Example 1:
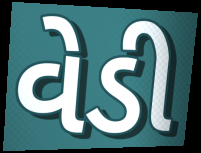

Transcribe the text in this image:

વેડી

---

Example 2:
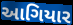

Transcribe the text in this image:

આગિયાર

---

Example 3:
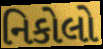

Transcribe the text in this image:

નિકોલો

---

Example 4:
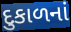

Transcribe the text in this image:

દુકાળનાં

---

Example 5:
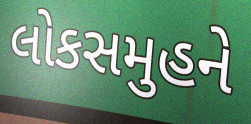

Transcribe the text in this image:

લોકસમુહને